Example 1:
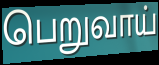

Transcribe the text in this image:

பெறுவாய்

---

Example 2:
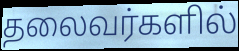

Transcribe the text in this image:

தலைவர்களில்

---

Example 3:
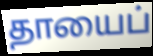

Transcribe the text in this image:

தாயைப்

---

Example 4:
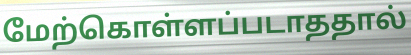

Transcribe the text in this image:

மேற்கொள்ளப்படாததால்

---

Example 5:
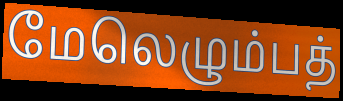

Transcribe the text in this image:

மேலெழும்பத்